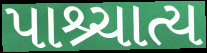
પાશ્ર્ચાત્ય